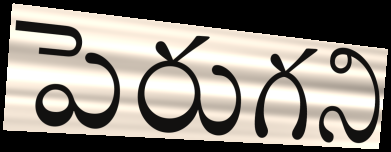
పెరుగని